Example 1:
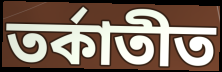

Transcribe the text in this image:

তর্কাতীত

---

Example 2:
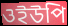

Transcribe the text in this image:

ওইউপি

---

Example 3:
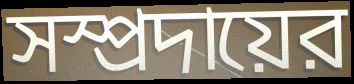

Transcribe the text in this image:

সস্প্রদায়ের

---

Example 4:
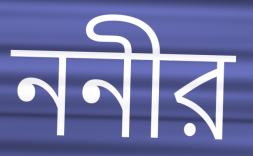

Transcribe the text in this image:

ননীর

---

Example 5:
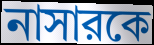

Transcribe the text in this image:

নাসারকে